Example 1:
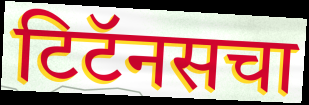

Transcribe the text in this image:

टिटॅनसचा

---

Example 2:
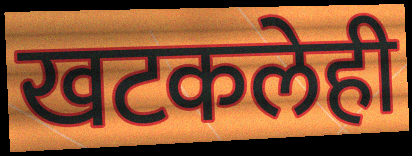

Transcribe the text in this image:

खटकलेही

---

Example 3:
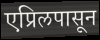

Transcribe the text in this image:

एप्रिलपासून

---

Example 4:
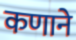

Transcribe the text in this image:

कणाने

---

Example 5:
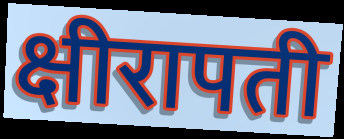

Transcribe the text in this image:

क्षीरापती